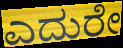
ಎದುರೇ